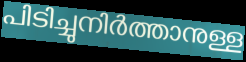
പിടിച്ചുനിർത്താനുള്ള